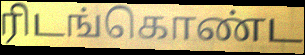
ரிடங்கொண்ட